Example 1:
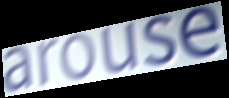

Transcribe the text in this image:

arouse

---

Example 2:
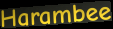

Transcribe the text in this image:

Harambee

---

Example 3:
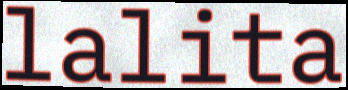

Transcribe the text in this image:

lalita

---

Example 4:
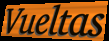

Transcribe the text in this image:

Vueltas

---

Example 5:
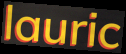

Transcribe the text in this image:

lauric